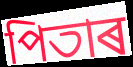
পিতাৰ